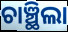
ଚାଞ୍ଛିଲା